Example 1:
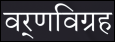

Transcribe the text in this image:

वर्णविग्रह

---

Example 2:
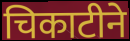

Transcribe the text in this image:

चिकाटीने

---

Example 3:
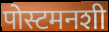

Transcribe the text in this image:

पोस्टमनशी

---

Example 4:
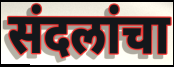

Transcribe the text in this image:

संदलांचा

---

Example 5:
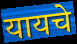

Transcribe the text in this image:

यायचे